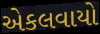
એકલવાયો